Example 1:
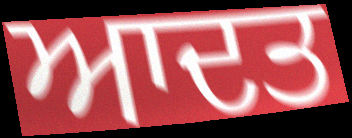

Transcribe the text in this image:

ਆਦਤ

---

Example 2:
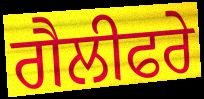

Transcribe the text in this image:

ਗੈਲੀਫਰੇ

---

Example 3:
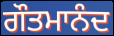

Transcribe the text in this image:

ਗੌਤਮਾਨੰਦ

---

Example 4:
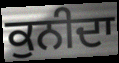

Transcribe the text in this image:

ਕੁਨੀਦਾ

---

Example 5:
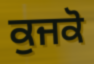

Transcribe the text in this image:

ਕੁਜਕੋ